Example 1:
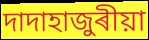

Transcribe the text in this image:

দাদাহাজুৰীয়া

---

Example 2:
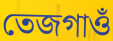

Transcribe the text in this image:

তেজগাওঁ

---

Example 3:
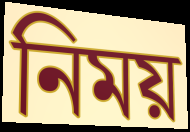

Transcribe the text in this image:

নিময়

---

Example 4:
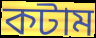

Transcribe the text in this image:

কটাম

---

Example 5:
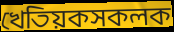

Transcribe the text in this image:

খেতিয়কসকলক